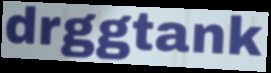
drggtank